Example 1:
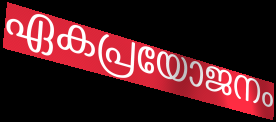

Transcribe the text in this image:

ഏകപ്രയോജനം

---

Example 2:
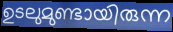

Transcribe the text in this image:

ഉടലുമുണ്ടായിരുന്ന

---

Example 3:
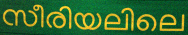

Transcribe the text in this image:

സീരിയലിലെ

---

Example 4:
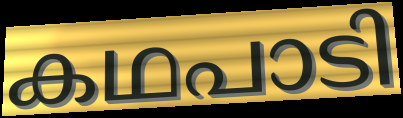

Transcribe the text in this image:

കഥപാടി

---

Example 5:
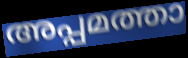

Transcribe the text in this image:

അപ്പമത്താ